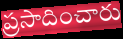
ప్రసాదించారు